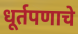
धूर्तपणाचे